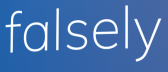
falsely